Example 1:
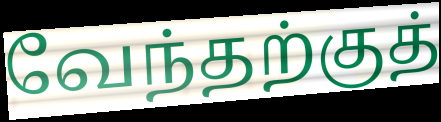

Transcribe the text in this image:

வேந்தற்குத்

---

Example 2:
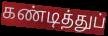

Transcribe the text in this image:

கண்டித்துப்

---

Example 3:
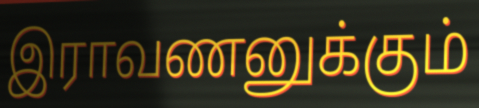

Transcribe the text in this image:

இராவணனுக்கும்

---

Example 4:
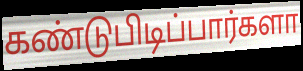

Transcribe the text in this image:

கண்டுபிடிப்பார்களா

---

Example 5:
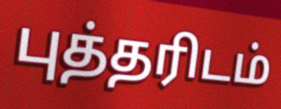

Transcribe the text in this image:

புத்தரிடம்